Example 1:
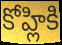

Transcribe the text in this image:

కోహ్లికి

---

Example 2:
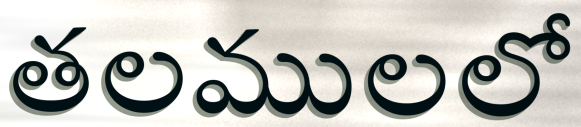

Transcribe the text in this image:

తలములలో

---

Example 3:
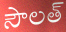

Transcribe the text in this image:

సౌలత్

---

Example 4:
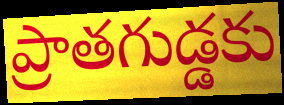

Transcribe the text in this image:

ప్రాతగుడ్డకు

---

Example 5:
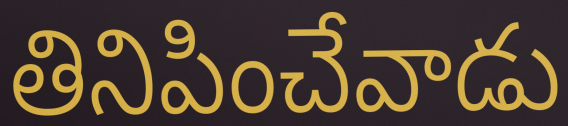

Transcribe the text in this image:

తినిపించేవాడు